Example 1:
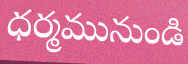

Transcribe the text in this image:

ధర్మమునుండి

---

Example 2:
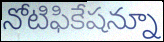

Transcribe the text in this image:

నోటిఫికేషన్నూ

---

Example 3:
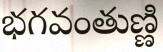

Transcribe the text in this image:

భగవంతుణ్ణి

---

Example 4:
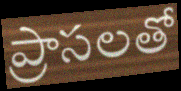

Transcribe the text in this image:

ప్రాసలతో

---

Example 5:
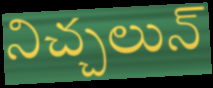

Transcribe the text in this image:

నిచ్చలున్